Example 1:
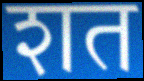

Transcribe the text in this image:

शत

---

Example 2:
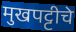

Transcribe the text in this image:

मुखपट्टीचे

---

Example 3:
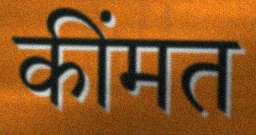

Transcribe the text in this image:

कींमत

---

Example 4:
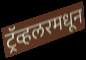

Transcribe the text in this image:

ट्रॅव्हलरमधून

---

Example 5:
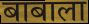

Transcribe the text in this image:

बाबाला